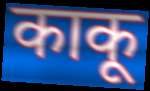
काकू